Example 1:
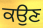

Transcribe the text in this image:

ਕਉਣ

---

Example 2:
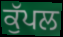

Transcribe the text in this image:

ਕੁੱਪਲ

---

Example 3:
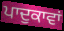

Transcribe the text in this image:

ਪਾਦੁਕਾਵਾਂ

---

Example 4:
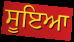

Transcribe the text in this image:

ਸੂਇਆ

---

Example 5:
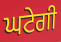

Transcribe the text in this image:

ਘਟੇਗੀ